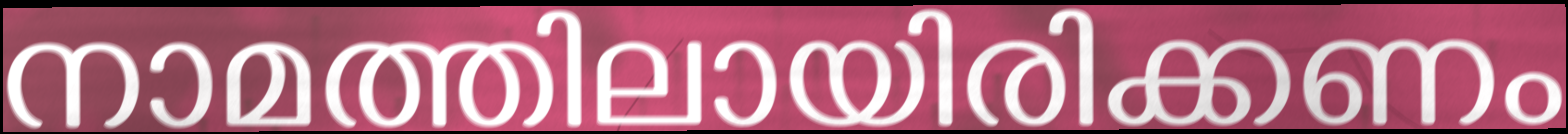
നാമത്തിലായിരിക്കണം